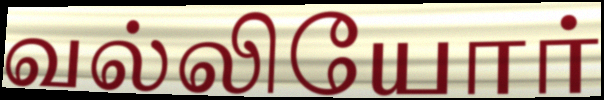
வல்லியோர்